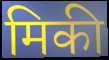
मिकी